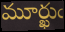
మూర్ఖుఁ